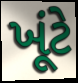
ખૂંટે